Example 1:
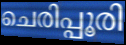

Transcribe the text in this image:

ചെരിപ്പൂരി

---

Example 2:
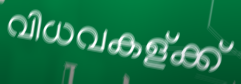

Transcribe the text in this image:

വിധവകള്ക്ക്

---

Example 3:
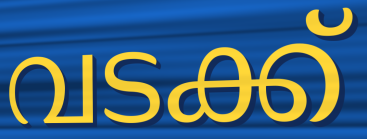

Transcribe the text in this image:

വടക്ക്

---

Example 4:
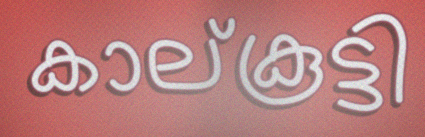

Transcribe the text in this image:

കാല്കൂട്ടി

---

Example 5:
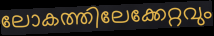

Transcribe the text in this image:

ലോകത്തിലേക്കേറ്റവും